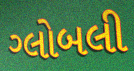
ગ્લોબલી